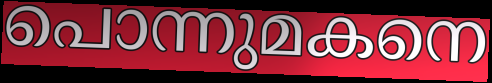
പൊന്നുമകനെ